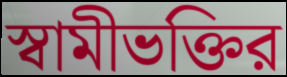
স্বামীভক্তির